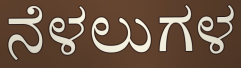
ನೆಳಲುಗಳ